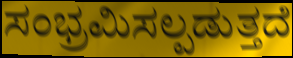
ಸಂಭ್ರಮಿಸಲ್ಪಡುತ್ತದೆ